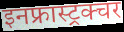
इनफ्रास्ट्रक्चर